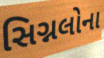
સિગ્નલોના